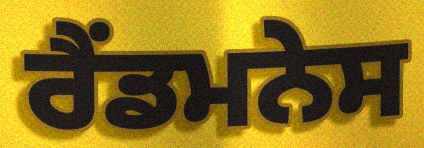
ਰੈਂਡਮਨੇਸ